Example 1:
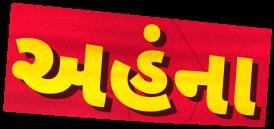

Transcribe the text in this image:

અહંના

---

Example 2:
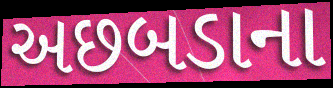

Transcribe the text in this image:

અછબડાના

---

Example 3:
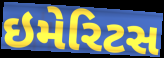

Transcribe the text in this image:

ઇમેરિટસ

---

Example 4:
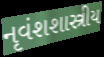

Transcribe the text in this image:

નૃવંશશાસ્ત્રીય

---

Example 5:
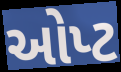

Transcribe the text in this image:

ઓપ્ટ